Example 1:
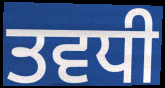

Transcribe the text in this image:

ਤਵਧੀ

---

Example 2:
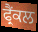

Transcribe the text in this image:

ਫ੍ਰੈਂਕਲ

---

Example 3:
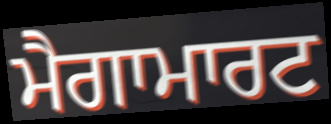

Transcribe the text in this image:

ਮੈਗਾਮਾਰਟ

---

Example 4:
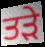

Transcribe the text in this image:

ਤੜੇ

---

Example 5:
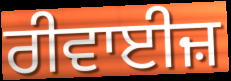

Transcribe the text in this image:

ਰੀਵਾਈਜ਼